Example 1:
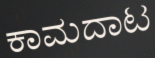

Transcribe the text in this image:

ಕಾಮದಾಟ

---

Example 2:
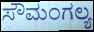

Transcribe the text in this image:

ಸೌಮಂಗಲ್ಯ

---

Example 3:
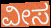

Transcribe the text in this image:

ವೀಸ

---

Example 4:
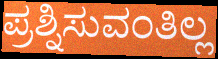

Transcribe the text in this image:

ಪ್ರಶ್ನಿಸುವಂತಿಲ್ಲ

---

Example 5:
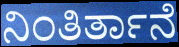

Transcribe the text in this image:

ನಿಂತಿರ್ತಾನೆ